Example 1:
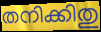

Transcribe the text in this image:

തനിക്കിതു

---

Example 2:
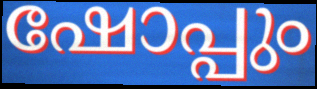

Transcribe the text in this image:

ഷോപ്പും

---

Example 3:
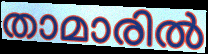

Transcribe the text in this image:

താമാരിൽ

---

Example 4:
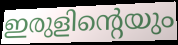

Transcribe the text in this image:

ഇരുളിന്റെയും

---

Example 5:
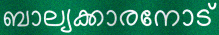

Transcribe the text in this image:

ബാല്യക്കാരനോട്